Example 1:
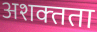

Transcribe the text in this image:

अशक्‍तता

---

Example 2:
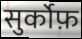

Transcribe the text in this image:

सुर्कोफ़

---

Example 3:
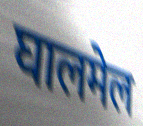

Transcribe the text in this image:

घालमेल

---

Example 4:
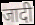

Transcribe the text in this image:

जादी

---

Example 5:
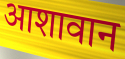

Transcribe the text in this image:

आशावान